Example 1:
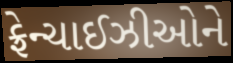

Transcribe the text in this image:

ફ્રેન્ચાઈઝીઓને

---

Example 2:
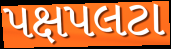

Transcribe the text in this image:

પક્ષપલટા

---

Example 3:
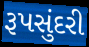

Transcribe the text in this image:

રૂપસુંદરી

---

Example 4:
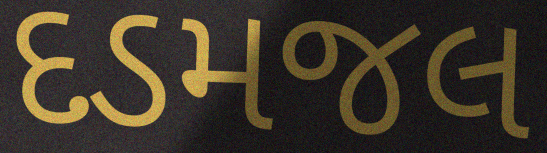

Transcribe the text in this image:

દડમજલ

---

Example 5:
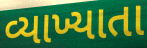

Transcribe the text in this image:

વ્યાખ્યાતા